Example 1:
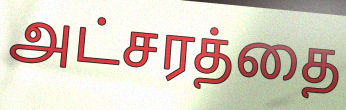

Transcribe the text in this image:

அட்சரத்தை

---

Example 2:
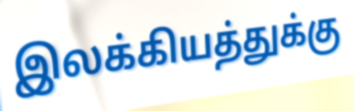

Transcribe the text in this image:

இலக்கியத்துக்கு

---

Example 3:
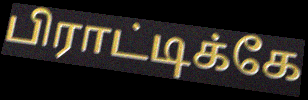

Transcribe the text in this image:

பிராட்டிக்கே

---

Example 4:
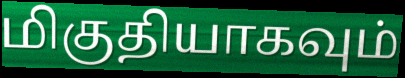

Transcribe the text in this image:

மிகுதியாகவும்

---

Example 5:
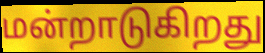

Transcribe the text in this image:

மன்றாடுகிறது